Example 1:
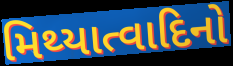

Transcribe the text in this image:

મિથ્યાત્વાદિનો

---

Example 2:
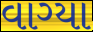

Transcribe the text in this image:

વાગ્યા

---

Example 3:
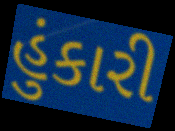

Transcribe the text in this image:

હુંકારી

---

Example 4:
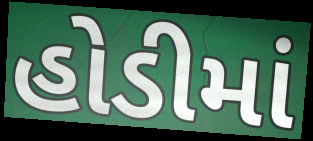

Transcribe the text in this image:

હોડીમાં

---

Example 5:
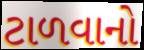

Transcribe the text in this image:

ટાળવાનો